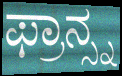
ಫ್ರಾನ್ಸ್ನ